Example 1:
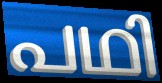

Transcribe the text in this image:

പഥി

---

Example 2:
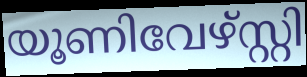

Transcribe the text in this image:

യൂണിവേഴ്സ്റ്റി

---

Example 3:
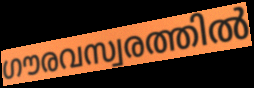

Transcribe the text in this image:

ഗൗരവസ്വരത്തിൽ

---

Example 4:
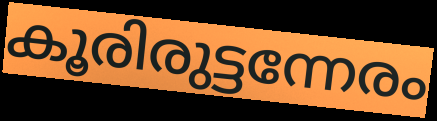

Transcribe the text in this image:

കൂരിരുട്ടന്നേരം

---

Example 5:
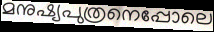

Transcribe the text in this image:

മനുഷ്യപുത്രനെപ്പോലെ